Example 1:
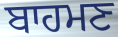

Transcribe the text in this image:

ਬਾਹਮਣ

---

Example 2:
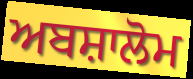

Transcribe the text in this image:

ਅਬਸ਼ਾਲੋਮ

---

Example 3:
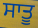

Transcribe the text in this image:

ਸਾਤੂ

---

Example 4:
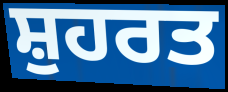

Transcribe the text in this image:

ਸ਼ੁਹਰਤ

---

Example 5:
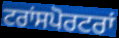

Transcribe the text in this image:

ਟਰਾਂਸਪੋਰਟਰਾਂ